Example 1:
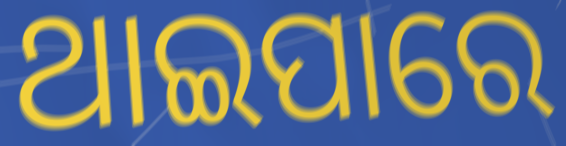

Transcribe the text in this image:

ଥାଇପାରେ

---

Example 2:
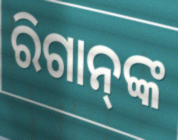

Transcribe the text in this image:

ରିଗାନ୍‌ଙ୍କ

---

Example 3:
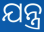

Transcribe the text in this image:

ଯନ୍ତ୍ର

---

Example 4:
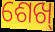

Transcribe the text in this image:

ଶେଖ୍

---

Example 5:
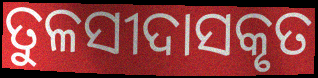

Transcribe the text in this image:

ତୁଳସୀଦାସକୃତ